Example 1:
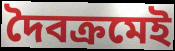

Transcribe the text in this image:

দৈবক্রমেই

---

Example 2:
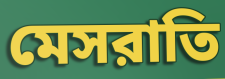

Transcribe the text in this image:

মেসরাতি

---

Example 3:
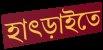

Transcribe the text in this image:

হাৎড়াইতে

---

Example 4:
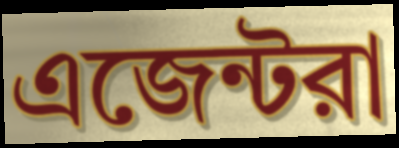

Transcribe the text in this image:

এজেন্টরা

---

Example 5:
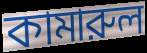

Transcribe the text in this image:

কামারুল